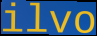
ilvo